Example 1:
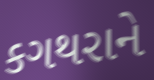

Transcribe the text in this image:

કગથરાને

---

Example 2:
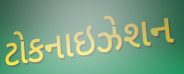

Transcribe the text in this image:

ટોકનાઇઝેશન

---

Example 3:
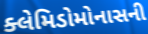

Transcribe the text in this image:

ક્લેમિડોમોનાસની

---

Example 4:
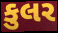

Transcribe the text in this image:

કુલર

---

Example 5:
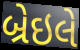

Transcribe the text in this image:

બ્રેઇલે